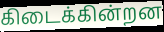
கிடைக்கின்றன